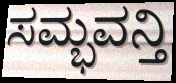
ಸಮ್ಭವನ್ತಿ